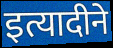
इत्यादीने